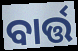
ବାର୍ତ୍ତ